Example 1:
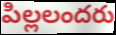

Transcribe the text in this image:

పిల్లలందరు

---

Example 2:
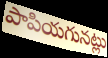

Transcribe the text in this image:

పాపియగునట్లు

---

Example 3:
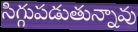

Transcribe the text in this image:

సిగ్గుపడుతున్నావు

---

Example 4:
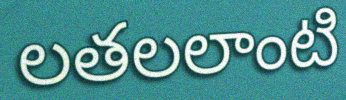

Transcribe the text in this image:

లతలలాంటి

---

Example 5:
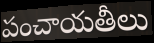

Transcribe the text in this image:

పంచాయతీలు